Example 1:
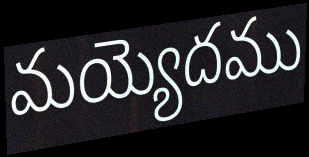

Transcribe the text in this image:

మయ్యెదము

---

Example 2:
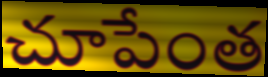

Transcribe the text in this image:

చూపేంత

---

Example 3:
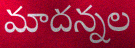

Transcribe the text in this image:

మాదన్నల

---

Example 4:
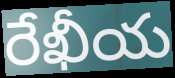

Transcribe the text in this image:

రేఖీయ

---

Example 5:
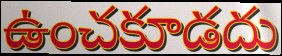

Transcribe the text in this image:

ఉంచకూడదు